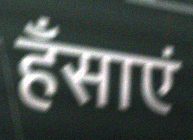
हँसाएं